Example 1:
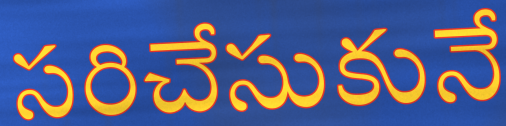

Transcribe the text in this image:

సరిచేసుకునే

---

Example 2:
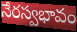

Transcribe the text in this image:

నేరస్వభావం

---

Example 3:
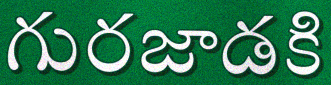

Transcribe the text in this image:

గురజాడకి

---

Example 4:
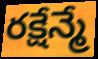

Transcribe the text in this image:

రక్షేన్మే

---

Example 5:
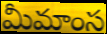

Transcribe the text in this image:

మీమాంస